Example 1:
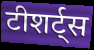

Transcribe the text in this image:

टीशर्ट्स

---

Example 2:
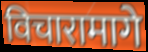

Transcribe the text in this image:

विचारामागे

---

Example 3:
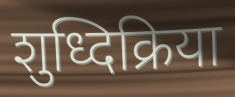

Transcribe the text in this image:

शुध्दिक्रिया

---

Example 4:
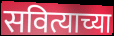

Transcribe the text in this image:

सवित्याच्या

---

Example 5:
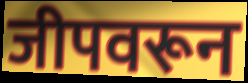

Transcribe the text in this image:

जीपवरून